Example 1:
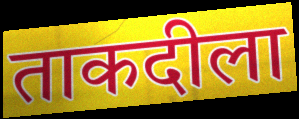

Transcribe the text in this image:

ताकदीला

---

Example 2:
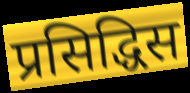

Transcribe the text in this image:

प्रसिद्धिस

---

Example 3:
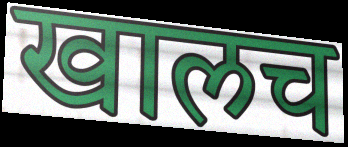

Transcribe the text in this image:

खालच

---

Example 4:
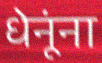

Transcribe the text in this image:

धेनूंना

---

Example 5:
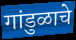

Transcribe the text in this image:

गांडुळाचे